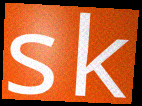
sk